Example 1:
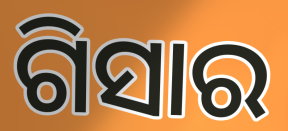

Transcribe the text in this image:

ଗିସାର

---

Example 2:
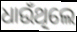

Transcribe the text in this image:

ଧାଉଁଥିଲେ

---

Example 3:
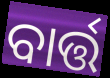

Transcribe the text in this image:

ବାର୍ତ୍ତ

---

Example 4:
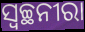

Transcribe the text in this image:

ସ୍ବଚ୍ଛନୀରା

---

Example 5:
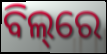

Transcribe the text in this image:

ବିଲ୍‌ରେ